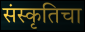
संस्कृतिचा